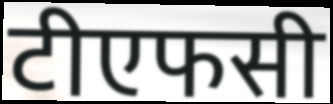
टीएफसी